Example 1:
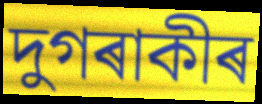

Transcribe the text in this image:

দুগৰাকীৰ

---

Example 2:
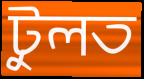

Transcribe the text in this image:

টুলত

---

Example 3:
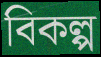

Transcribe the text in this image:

বিকল্প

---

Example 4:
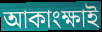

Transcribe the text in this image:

আকাংক্ষাই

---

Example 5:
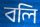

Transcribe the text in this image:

বলি